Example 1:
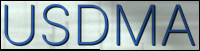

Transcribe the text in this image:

USDMA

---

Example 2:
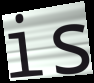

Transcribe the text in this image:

is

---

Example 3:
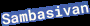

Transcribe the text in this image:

Sambasivan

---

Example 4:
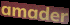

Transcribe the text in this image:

amader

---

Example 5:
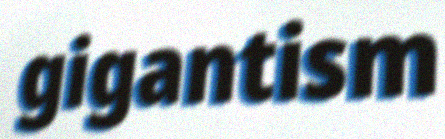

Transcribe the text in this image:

gigantism